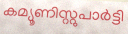
കമ്യൂണിസ്റ്റുപാർട്ടി